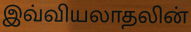
இவ்வியலாதலின்